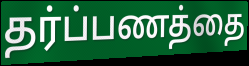
தர்ப்பணத்தை